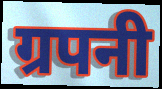
ग्रपनी